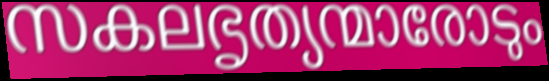
സകലഭൃത്യന്മാരോടും